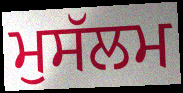
ਮੁਸੱਲਮ